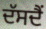
ਦੱਸਦੈਂ